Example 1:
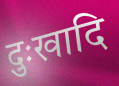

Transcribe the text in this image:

दुःखादि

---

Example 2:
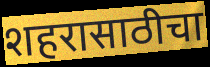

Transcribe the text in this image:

शहरासाठीचा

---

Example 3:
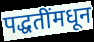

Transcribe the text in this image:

पद्धतींमधून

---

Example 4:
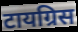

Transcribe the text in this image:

टायग्रिस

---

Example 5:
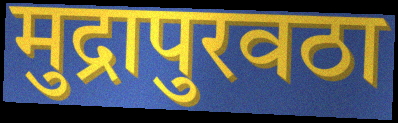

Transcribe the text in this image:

मुद्रापुरवठा